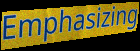
Emphasizing